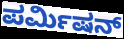
ಪರ್ಮಿಷನ್